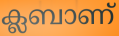
ക്ലബാണ്